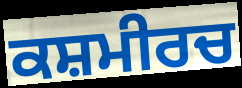
ਕਸ਼ਮੀਰਚ